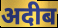
अदीब